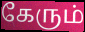
கேரும்